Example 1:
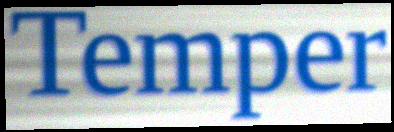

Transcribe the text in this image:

Temper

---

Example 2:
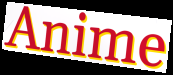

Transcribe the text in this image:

Anime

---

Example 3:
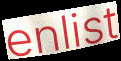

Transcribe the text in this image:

enlist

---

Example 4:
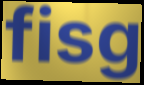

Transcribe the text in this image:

fisg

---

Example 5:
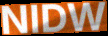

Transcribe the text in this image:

NIDW